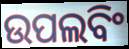
ଉପଲବିଂ